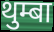
थुम्बा